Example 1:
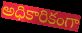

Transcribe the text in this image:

అధికారికంగా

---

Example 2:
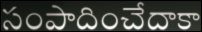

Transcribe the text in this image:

సంపాదించేదాకా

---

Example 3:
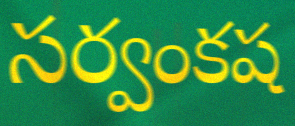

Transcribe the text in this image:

సర్వంకష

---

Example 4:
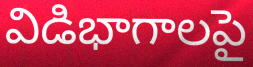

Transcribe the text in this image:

విడిభాగాలపై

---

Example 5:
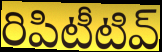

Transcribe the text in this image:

రిపిటీటివ్